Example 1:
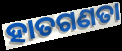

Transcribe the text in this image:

ହାତଗଣତା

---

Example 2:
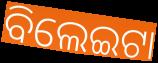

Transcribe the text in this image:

ବିଲେଇଟା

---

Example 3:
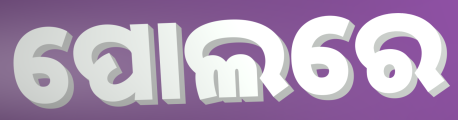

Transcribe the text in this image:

ପୋଲରେ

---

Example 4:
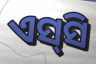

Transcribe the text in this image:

ଏସ୍‌ସି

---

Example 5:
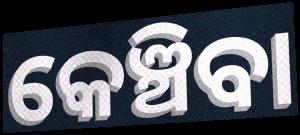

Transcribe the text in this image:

କେଞ୍ଚିବା